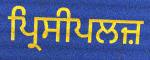
ਪ੍ਰਿਸੀਪਲਜ਼